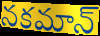
నకమాన్